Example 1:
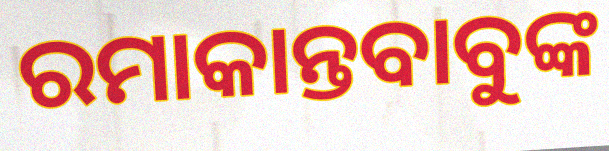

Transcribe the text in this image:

ରମାକାନ୍ତବାବୁଙ୍କ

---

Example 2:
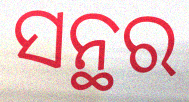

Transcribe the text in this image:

ସନ୍ଥର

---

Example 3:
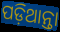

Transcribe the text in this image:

ପଡ଼ିଥାନ୍ତା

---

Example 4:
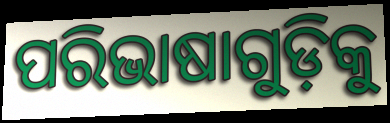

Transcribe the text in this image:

ପରିଭାଷାଗୁଡ଼ିକୁ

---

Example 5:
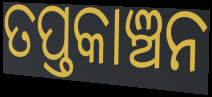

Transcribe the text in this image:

ତପ୍ତକାଞ୍ଚନ